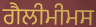
ਗੈਲੀਮੀਮਸ